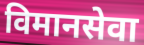
विमानसेवा